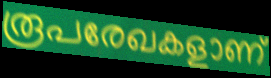
രൂപരേഖകളാണ്